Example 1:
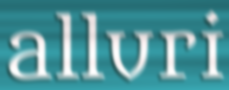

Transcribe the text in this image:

alluri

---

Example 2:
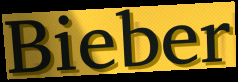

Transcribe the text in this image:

Bieber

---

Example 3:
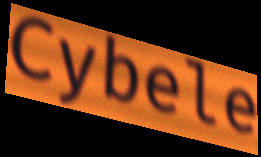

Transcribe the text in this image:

Cybele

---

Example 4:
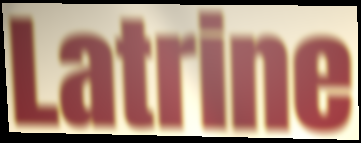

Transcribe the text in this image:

Latrine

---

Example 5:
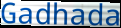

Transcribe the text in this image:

Gadhada